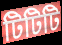
টিটিটি